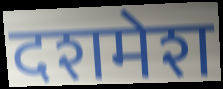
दशमेश